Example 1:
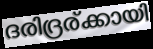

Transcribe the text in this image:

ദരിദ്രര്ക്കായി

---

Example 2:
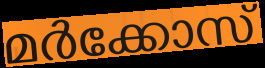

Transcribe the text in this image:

മർക്കോസ്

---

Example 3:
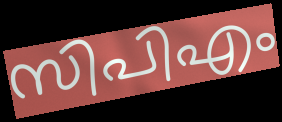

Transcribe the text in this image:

സിപിഎം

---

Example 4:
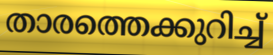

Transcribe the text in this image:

താരത്തെക്കുറിച്ച്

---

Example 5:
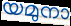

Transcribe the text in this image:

യമുനാ